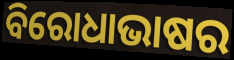
ବିରୋଧାଭାଷର